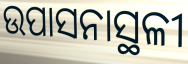
ଉପାସନାସ୍ଥଳୀ